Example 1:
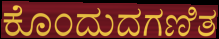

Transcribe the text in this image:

ಕೊಂದುದಗಣಿತ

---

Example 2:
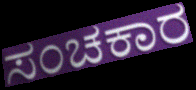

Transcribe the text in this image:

ಸಂಚಕಾರ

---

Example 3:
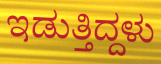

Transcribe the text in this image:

ಇಡುತ್ತಿದ್ದಳು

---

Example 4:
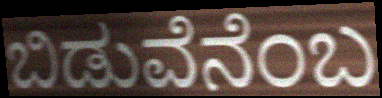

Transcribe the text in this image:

ಬಿಡುವೆನೆಂಬ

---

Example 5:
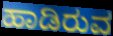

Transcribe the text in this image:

ಹಾಡಿರುವ